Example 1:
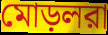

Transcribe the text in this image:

মোড়লরা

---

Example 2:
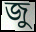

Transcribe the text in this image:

জু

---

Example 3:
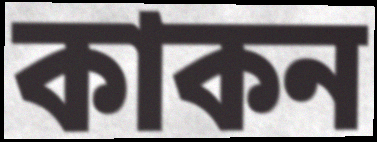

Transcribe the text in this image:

কাকন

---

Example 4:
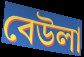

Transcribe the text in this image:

বেউলা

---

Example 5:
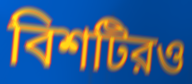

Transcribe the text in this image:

বিশটিরও